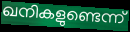
ഖനികളുണ്ടെന്ന്